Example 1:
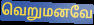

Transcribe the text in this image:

வெறுமனவே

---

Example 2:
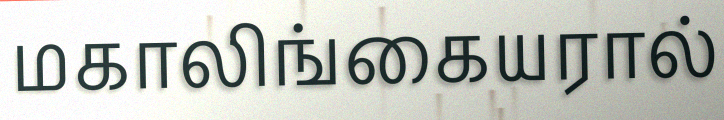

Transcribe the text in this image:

மகாலிங்கையரால்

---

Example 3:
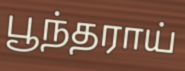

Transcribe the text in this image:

பூந்தராய்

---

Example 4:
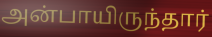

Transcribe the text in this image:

அன்பாயிருந்தார்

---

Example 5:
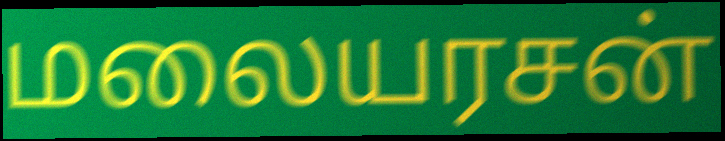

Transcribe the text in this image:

மலையரசன்